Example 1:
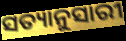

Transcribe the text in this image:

ସତ୍ୟାନୁସାରୀ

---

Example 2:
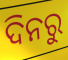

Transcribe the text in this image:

ଦିନରୁ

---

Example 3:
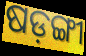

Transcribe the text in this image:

ଷଡ଼ଙ୍ଗୀ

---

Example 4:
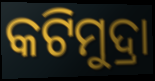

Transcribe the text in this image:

କଟିମୁଦ୍ରା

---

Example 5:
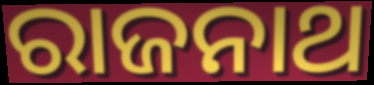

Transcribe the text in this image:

ରାଜନାଥ